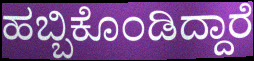
ಹಬ್ಬಿಕೊಂಡಿದ್ದಾರೆ